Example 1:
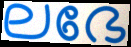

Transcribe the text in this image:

ലഭേ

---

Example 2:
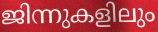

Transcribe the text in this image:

ജിന്നുകളിലും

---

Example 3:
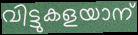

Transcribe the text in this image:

വിട്ടുകളയാന്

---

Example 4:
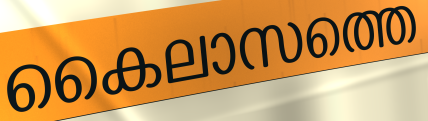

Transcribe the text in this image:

കൈലാസത്തെ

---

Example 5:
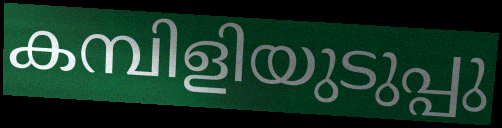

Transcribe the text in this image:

കമ്പിളിയുടുപ്പു